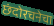
छंदोरचनेचा